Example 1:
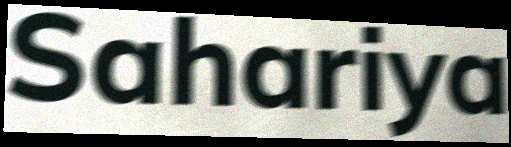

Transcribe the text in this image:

Sahariya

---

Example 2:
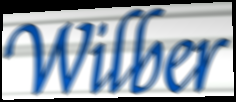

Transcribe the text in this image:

Wilber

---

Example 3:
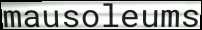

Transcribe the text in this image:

mausoleums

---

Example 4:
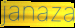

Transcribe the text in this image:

janaza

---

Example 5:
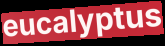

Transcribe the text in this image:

eucalyptus